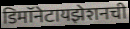
डिमॉनेटायझेशनची